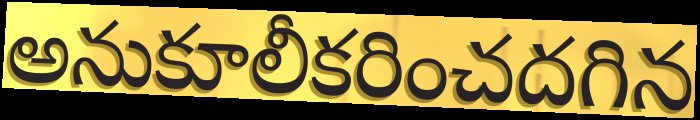
అనుకూలీకరించదగిన